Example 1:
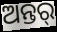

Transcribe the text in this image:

ଅନ୍ତର୍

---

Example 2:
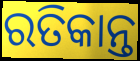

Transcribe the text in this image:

ରତିକାନ୍ତ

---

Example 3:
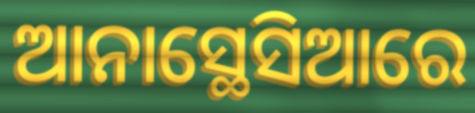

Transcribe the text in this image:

ଆନାସ୍ଥେସିଆରେ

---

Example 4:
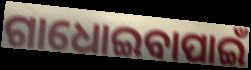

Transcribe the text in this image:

ଗାଧୋଇବାପାଇଁ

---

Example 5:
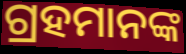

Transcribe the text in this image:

ଗ୍ରହମାନଙ୍କ